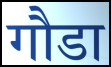
गौडा